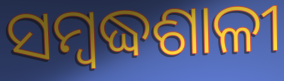
ସମ୍ବଦ୍ଧଶାଳୀ